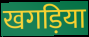
खगड़िया